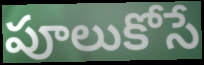
పూలుకోసే